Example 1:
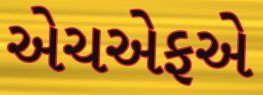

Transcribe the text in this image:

એચએફએ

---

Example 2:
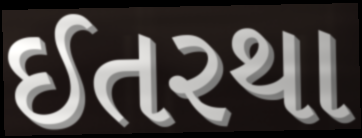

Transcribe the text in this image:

ઈતરથા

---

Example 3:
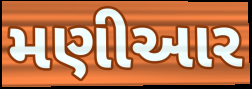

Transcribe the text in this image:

મણીઆર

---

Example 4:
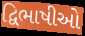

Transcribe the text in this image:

દ્વિભાષીઓ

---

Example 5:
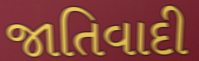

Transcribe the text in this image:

જાતિવાદી